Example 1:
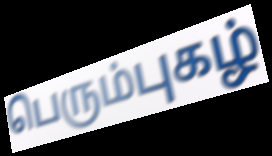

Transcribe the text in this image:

பெரும்புகழ்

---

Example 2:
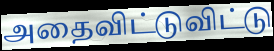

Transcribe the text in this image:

அதைவிட்டுவிட்டு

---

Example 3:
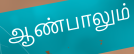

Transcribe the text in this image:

ஆண்பாலும்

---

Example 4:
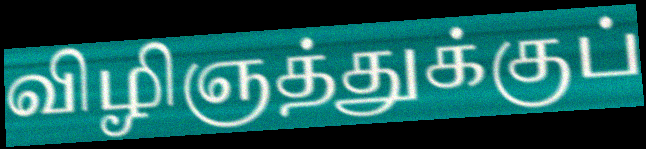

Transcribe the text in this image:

விழிஞத்துக்குப்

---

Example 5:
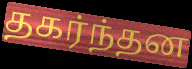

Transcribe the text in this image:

தகர்ந்தன